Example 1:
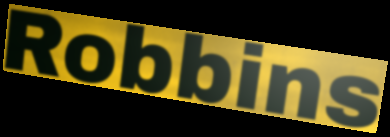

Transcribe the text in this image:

Robbins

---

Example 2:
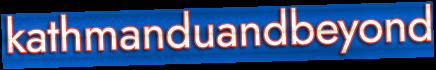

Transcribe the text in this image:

kathmanduandbeyond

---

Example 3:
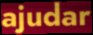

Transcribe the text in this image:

ajudar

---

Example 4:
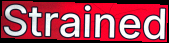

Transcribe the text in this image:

Strained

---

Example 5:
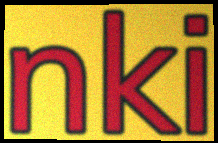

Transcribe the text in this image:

nki